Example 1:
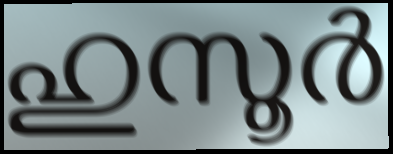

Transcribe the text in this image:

ഹുസൂർ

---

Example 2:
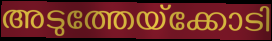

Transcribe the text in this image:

അടുത്തേയ്‌ക്കോടി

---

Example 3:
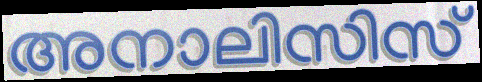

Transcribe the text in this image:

അനാലിസിസ്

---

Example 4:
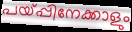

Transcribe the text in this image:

പയ്പ്പിനേക്കാളും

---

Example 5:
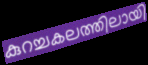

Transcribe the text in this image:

കുറച്ചകലത്തിലായി